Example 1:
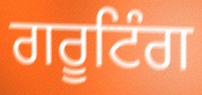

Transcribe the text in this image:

ਗਰੂਟਿੰਗ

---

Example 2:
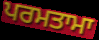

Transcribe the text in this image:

ਪਰਮਤਾਮਾ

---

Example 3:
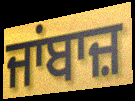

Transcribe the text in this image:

ਜਾਂਬਾਜ਼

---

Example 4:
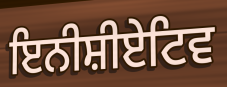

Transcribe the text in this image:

ਇਨੀਸ਼ੀਏਟਿਵ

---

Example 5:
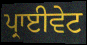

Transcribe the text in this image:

ਪ੍ਰਾਈਵੇਟ